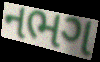
નભગ